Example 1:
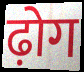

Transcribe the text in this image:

ढ़ोग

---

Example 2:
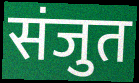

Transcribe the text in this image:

संजुत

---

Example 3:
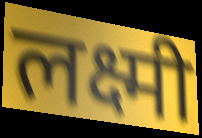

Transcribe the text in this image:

लक्ष्‍मी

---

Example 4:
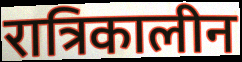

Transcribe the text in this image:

रात्रिकालीन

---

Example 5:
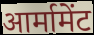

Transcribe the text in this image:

आर्मामेंट